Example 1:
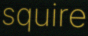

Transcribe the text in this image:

squire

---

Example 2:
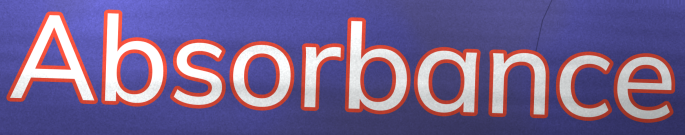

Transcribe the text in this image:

Absorbance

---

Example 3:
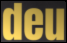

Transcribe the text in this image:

deu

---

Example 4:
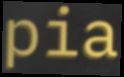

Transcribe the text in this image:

pia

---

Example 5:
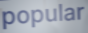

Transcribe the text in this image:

popular